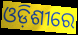
ଓଡ଼ିଶୀରେ